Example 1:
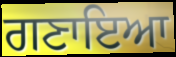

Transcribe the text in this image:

ਗਣਾਇਆ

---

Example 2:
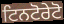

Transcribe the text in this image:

ਟਿਨਟੋਰੇਟੋ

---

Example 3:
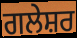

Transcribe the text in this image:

ਗਲੇਸ਼ਰ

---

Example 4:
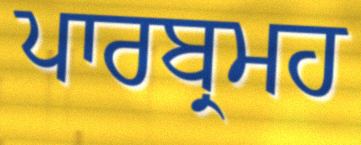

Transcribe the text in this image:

ਪਾਰਬ੍ਰਮਹ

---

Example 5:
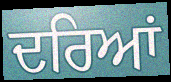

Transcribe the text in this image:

ਦਰਿਆਂ